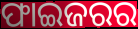
ଫାଇଜରର